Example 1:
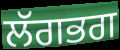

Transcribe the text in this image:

ਲੱਗਭਗ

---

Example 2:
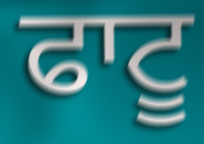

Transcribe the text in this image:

ਫਾਟੂ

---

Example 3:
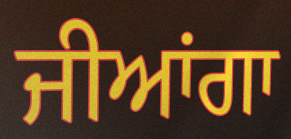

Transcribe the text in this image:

ਜੀਆਂਗਾ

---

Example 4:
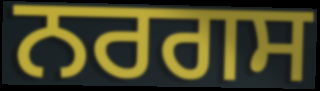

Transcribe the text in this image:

ਨਰਗਸ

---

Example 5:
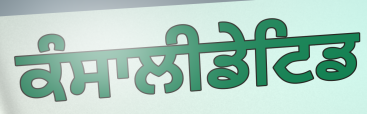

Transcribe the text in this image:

ਕੰਸਾਲੀਡੇਟਿਡ